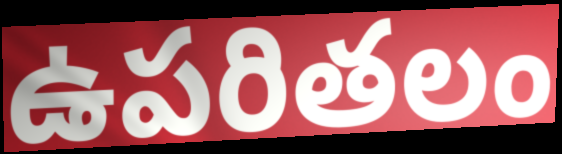
ఉపరితలం